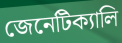
জেনেটিক্যালি